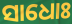
ସାଧୋଃ